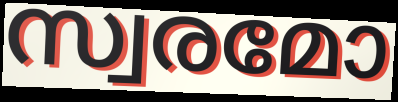
സ്വരമോ